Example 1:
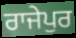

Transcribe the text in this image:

ਰਾਜੇਪੁਰ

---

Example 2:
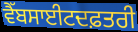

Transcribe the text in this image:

ਵੈੱਬਸਾਈਟਦਫ਼ਤਰੀ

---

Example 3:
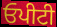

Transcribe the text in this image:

ਓਪੀਟੀ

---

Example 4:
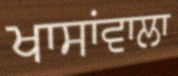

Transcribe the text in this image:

ਖਾਸਾਂਵਾਲਾ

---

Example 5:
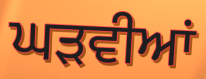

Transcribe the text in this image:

ਘੜਵੀਆਂ